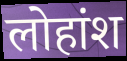
लोहांश